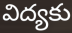
విద్యకు